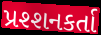
પ્રશ્શનકર્તા